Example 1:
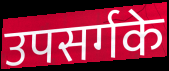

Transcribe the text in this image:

उपसर्गके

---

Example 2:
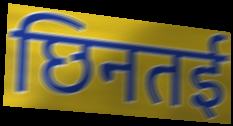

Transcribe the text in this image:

छिनतई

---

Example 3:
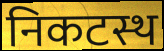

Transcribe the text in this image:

निकटस्थ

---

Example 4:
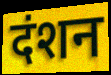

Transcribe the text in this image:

दंशन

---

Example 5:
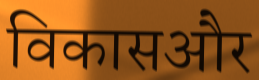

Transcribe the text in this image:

विकासऔर